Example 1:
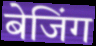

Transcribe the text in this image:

बेजिंग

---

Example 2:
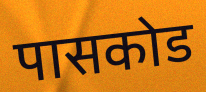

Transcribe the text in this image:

पासकोड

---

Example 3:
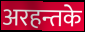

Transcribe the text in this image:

अरहन्तके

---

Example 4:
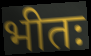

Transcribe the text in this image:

भीतः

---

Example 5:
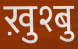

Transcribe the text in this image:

ख़ुश्बु